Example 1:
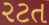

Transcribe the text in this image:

રટત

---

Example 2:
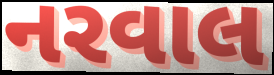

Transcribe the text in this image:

નરવાલ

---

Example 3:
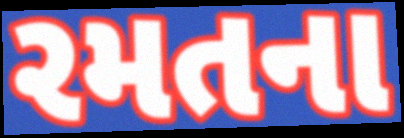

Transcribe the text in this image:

રમતના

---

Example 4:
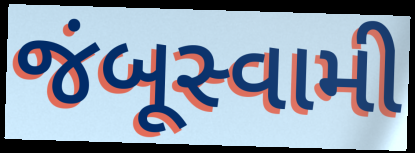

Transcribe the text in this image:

જંબૂસ્વામી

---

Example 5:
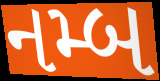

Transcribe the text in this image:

નમ્બ